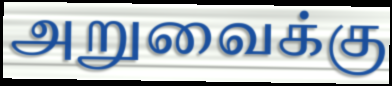
அறுவைக்கு